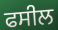
ਫਸੀਲ